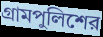
গ্রামপুলিশের